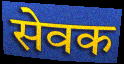
सेवक